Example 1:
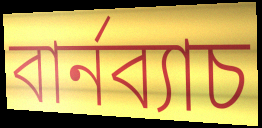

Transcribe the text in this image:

বার্নব্যাচ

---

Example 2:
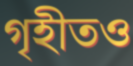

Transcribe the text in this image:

গৃহীতও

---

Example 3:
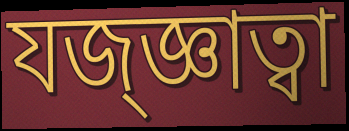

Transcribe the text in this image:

যজ্জ্ঞাত্বা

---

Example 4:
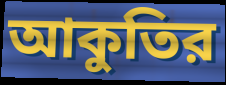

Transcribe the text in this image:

আকুতির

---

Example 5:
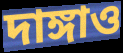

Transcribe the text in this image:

দাঙ্গাও